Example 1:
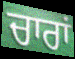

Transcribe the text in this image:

ਚਾਰਾਂ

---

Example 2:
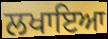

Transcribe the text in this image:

ਲਖਾਇਆ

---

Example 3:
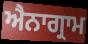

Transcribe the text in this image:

ਐਨਾਗ੍ਰਾਮ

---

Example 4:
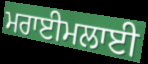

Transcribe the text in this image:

ਮਰਾਈਮਲਾਈ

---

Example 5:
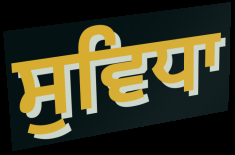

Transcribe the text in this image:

ਸੁਵਿਧਾ